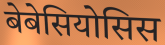
बेबेसियोसिस